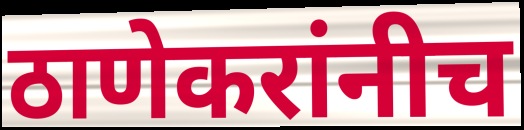
ठाणेकरांनीच